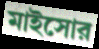
মাইসোর